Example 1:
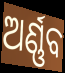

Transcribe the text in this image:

ଅର୍ଣ୍ଣବ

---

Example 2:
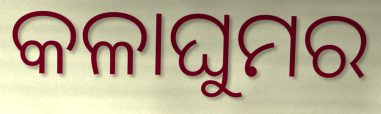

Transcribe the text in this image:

କଳାଘୁମର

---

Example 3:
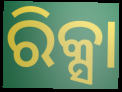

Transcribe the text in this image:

ରିକ୍ସା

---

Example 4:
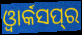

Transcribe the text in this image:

ଓ୍ୱାର୍କସପ୍‌ର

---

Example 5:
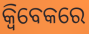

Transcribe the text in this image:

କ୍ୱିବେକରେ